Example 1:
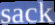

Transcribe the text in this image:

sack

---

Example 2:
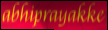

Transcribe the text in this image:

abhiprayakke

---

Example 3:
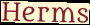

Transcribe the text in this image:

Herms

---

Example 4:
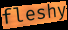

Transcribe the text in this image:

fleshy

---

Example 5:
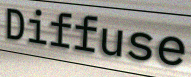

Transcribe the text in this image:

Diffuse